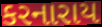
કરનારાય